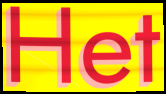
Het